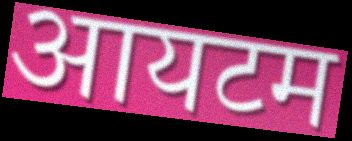
आयटम